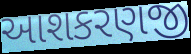
આશકરણજી